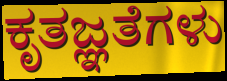
ಕೃತಜ್ಞತೆಗಳು